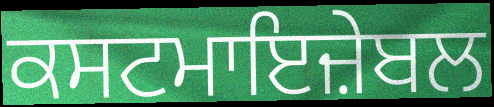
ਕਸਟਮਾਇਜ਼ੇਬਲ